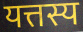
यत्तस्य